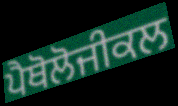
ਪੈਥੋਲੋਜੀਕਲ